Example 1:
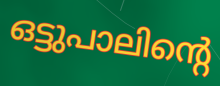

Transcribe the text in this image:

ഒട്ടുപാലിന്റെ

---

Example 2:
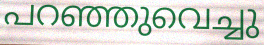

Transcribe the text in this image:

പറഞ്ഞുവെച്ചു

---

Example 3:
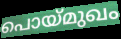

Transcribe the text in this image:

പൊയ്മുഖം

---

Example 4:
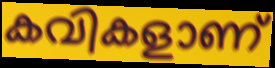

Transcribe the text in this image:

കവികളാണ്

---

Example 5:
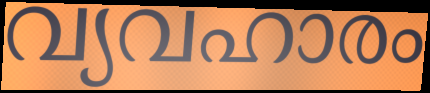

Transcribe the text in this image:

വ്യവഹാരം